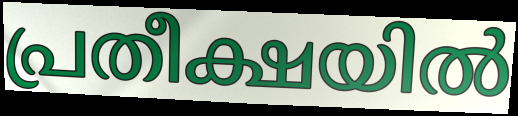
പ്രതീക്ഷയിൽ